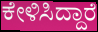
ಕೇಳಿಸಿದ್ದಾರೆ